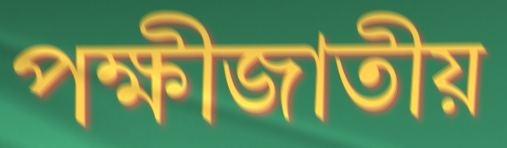
পক্ষীজাতীয়